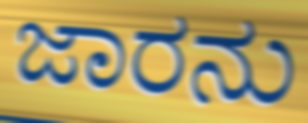
ಜಾರನು